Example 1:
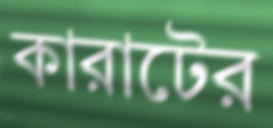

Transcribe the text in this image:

কারাটের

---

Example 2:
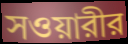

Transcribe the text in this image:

সওয়ারীর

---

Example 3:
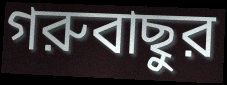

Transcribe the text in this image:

গরুবাছুর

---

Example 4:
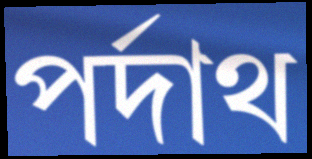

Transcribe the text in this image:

পর্দাথ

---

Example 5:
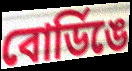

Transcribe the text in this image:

বোর্ডিঙে